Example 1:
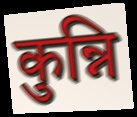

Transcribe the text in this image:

कुन्नि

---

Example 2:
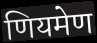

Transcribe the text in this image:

णियमेण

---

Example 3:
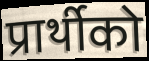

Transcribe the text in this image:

प्रार्थीको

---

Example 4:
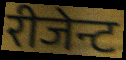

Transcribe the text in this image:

रीजेन्ट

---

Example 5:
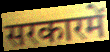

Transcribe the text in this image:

सरकारमें